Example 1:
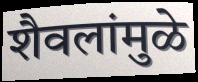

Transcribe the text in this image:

शैवलांमुळे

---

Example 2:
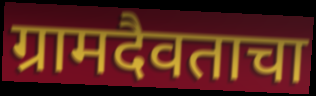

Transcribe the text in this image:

ग्रामदैवताचा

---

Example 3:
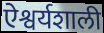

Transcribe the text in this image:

ऐश्वर्यशाली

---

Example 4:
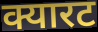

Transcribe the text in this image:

क्यारट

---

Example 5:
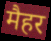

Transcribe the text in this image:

मैहर